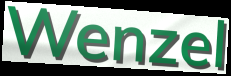
Wenzel